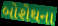
બોશેથના